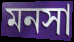
মনসা